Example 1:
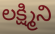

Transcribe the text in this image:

లక్ష్మిని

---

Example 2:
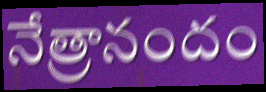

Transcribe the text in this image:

నేత్రానందం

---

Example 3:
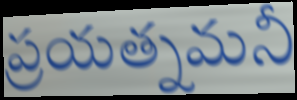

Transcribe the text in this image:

ప్రయత్నమనీ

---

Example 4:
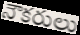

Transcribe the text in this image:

నౌకరులు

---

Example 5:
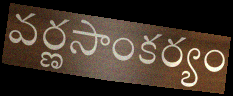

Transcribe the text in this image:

వర్ణసాంకర్యం